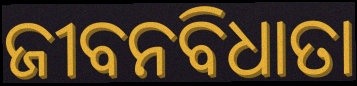
ଜୀବନବିଧାତା